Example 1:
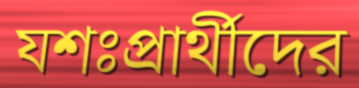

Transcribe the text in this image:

যশঃপ্রার্থীদের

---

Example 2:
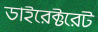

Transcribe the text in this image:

ডাইরেক্টরেট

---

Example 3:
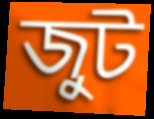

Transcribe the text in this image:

জুট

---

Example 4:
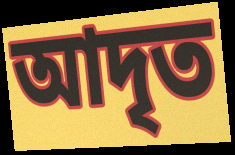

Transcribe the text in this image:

আদৃত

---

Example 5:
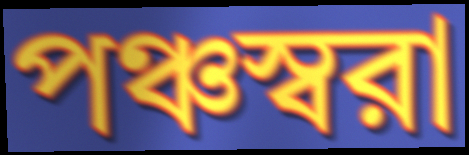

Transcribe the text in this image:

পঞ্চস্বরা